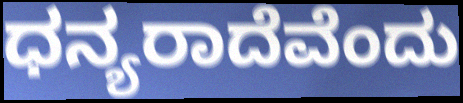
ಧನ್ಯರಾದೆವೆಂದು